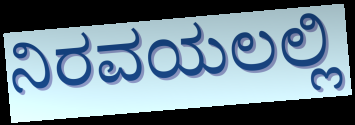
ನಿರವಯಲಲ್ಲಿ